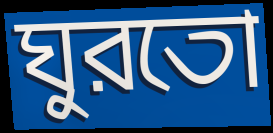
ঘুরতো